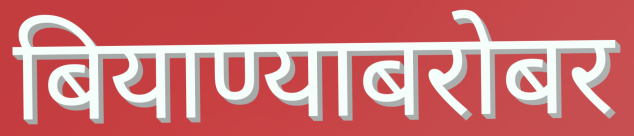
बियाण्याबरोबर